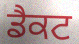
ਡੈਕਟ